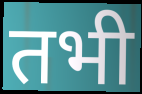
तभी